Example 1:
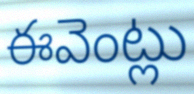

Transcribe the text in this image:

ఈవెంట్లు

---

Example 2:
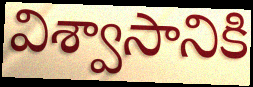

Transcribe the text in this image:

విశ్వాసానికి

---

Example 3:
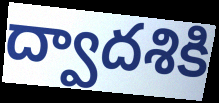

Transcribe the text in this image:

ద్వాదశికి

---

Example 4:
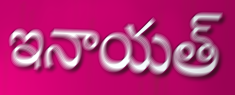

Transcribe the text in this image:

ఇనాయత్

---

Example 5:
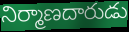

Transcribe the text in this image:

నిర్మాణదారుడు